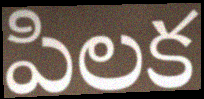
పిలక